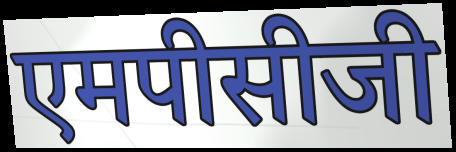
एमपीसीजी